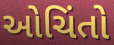
ઓચિંતો